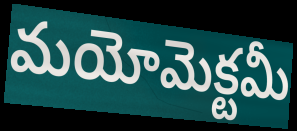
మయోమెక్టమీ